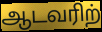
ஆடவரிற்